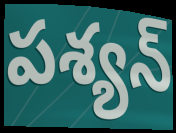
పశ్యన్